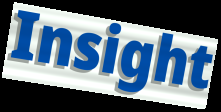
Insight